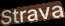
Strava